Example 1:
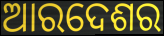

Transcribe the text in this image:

ଆରଦେଶର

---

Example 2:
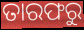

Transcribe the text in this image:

ତାରଫରୁ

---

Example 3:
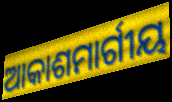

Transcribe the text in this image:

ଆକାଶମାର୍ଗୀୟ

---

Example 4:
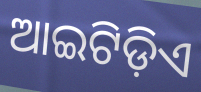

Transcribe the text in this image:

ଆଇଟିଡ଼ିଏ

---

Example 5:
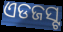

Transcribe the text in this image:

ଏଡଜସ୍ଟ